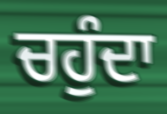
ਚਹੁੰਦਾ